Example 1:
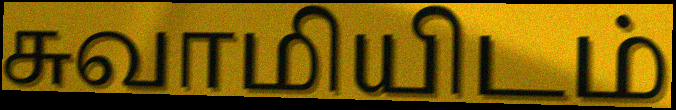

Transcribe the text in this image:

சுவாமியிடம்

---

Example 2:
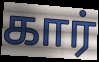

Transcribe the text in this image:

கார்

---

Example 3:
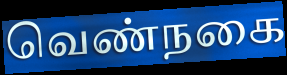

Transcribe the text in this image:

வெண்நகை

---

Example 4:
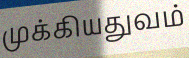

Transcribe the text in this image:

முக்கியதுவம்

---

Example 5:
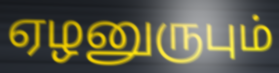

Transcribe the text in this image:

ஏழனுருபும்